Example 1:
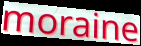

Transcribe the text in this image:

moraine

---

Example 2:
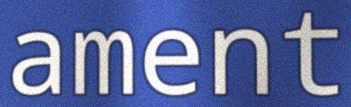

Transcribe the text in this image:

ament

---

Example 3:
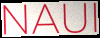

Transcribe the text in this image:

NAUI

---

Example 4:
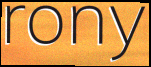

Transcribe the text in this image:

rony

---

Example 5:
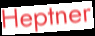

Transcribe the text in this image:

Heptner